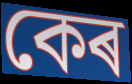
কেৰ